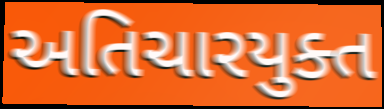
અતિચારયુક્ત